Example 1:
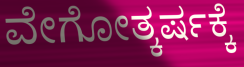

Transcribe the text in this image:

ವೇಗೋತ್ಕರ್ಷಕ್ಕೆ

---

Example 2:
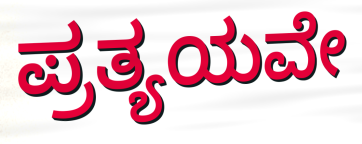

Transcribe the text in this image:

ಪ್ರತ್ಯಯವೇ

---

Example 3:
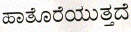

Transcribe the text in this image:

ಹಾತೊರೆಯುತ್ತದೆ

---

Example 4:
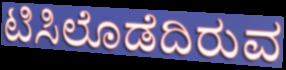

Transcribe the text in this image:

ಟಿಸಿಲೊಡೆದಿರುವ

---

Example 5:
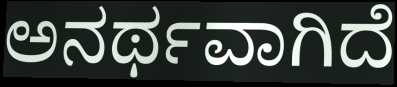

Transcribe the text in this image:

ಅನರ್ಥವಾಗಿದೆ